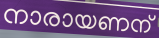
നാരായണന്